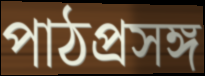
পাঠপ্রসঙ্গ